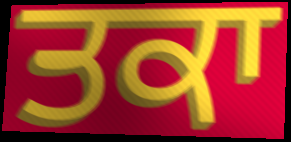
ਤਕਾ